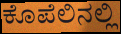
ಕೊಪೆಲಿನಲ್ಲಿ